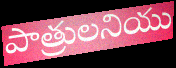
పాత్రులనియు